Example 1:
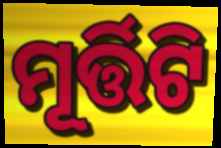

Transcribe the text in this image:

ମୂର୍ତ୍ତିଟି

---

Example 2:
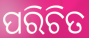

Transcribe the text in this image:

ପରିଚିତ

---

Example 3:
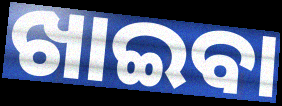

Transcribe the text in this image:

ଖାଇବା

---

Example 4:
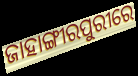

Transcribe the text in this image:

ଜାହାଙ୍ଗୀରପୁରୀରେ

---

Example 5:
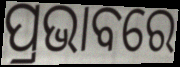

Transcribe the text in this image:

ପ୍ରଭାବରେ